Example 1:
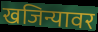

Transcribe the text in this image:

खजिन्यावर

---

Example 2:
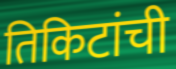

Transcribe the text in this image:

तिकिटांची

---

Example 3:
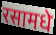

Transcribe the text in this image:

रसामधे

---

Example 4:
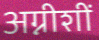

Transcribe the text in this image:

अग्नीशीं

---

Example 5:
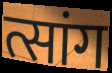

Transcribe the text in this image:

त्सांग